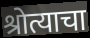
श्रोत्याचा